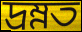
দ্রম্নত